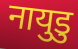
नायुडु